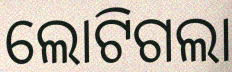
ଲୋଟିଗଲା